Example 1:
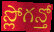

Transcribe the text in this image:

స్లోగన్తో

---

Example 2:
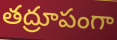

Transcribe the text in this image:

తద్రూపంగా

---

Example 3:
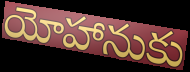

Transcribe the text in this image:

యోహానుకు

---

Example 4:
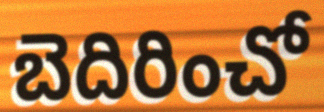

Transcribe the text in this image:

బెదిరించో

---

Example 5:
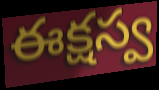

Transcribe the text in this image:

ఈక్షస్వ